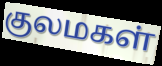
குலமகள்